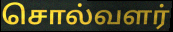
சொல்வளர்